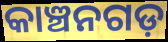
କାଞ୍ଚନଗଡ଼